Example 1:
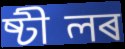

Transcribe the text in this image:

ষ্টীলৰ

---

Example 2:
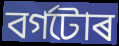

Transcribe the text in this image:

বৰ্গটোৰ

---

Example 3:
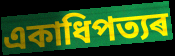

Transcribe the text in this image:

একাধিপত্যৰ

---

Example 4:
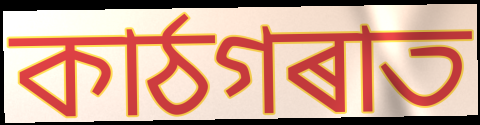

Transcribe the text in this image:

কাঠগৰাত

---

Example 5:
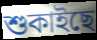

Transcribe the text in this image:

শুকাইছে